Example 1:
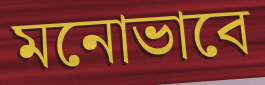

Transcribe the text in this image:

মনোভাবে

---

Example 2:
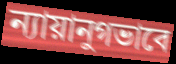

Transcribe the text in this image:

ন্যায়ানুগভাবে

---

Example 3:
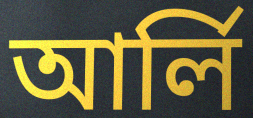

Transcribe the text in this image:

আর্লি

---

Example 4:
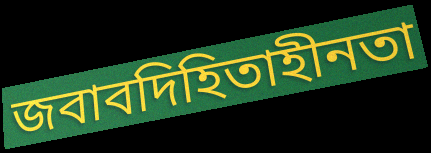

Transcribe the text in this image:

জবাবদিহিতাহীনতা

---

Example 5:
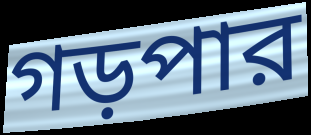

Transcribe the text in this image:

গড়পার